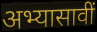
अभ्यासावीं